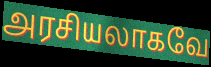
அரசியலாகவே